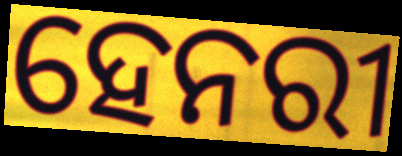
ହେନରୀ